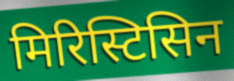
मिरिस्टिसिन